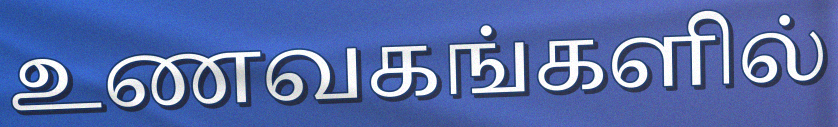
உணவகங்களில்